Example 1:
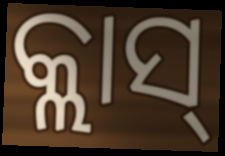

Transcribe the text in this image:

କ୍ଲାସ୍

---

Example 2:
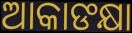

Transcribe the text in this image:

ଆକାଙକ୍ଷା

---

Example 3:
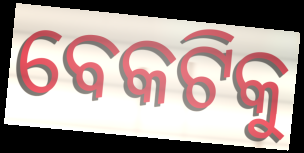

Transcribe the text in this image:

ବେକଟିକୁ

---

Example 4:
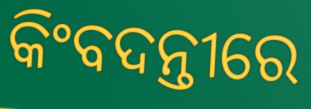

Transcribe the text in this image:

କିଂବଦନ୍ତୀରେ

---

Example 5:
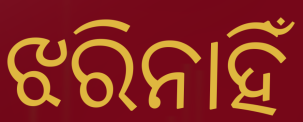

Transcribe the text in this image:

ଝରିନାହିଁ